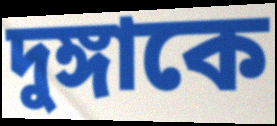
দুঙ্গাকে